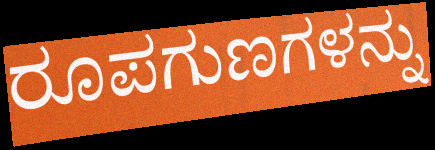
ರೂಪಗುಣಗಳನ್ನು